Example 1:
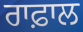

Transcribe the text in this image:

ਰਾਫ਼ਾਲ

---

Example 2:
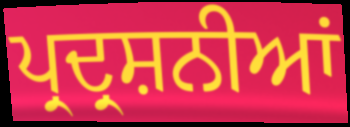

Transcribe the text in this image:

ਪ੍ਰਦ੍ਰਸ਼ਨੀਆਂ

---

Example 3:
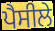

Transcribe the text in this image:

ਪੈਸੀਲੇ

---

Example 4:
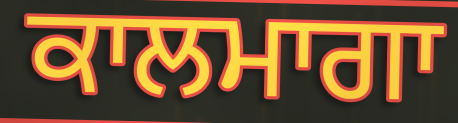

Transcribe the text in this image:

ਕਾਲਮਾਗਾ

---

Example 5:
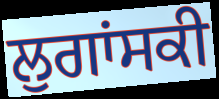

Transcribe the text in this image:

ਲੁਗਾਂਸਕੀ